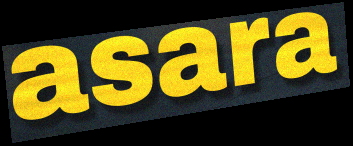
asara